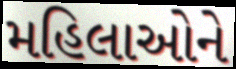
મહિલાઓને